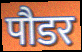
पौडर